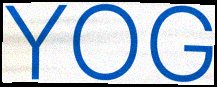
YOG